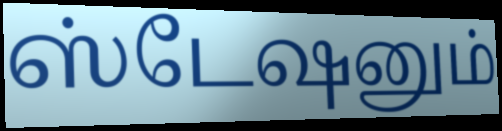
ஸ்டேஷனும்